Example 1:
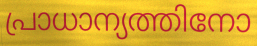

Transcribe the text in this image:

പ്രാധാന്യത്തിനോ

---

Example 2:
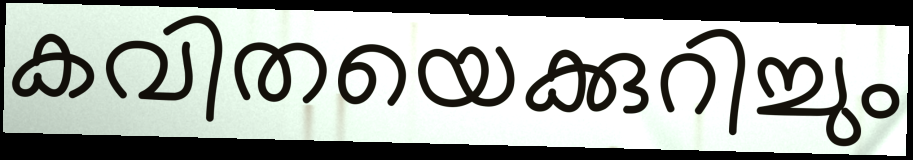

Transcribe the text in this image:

കവിതയെക്കുറിച്ചും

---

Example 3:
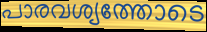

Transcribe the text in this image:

പാരവശ്യത്തോടെ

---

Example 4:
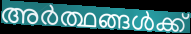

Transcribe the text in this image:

അർത്ഥങ്ങൾക്ക്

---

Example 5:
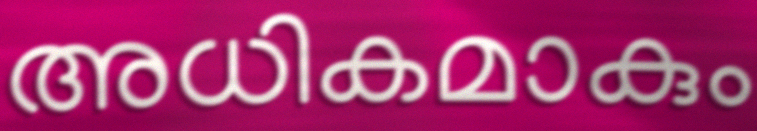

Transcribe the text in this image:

അധികമാകും